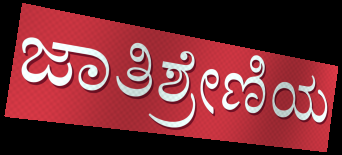
ಜಾತಿಶ್ರೇಣಿಯ